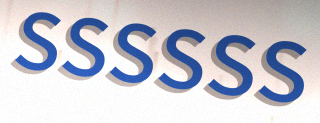
ssssss